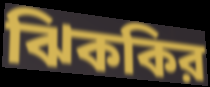
ঝিককির